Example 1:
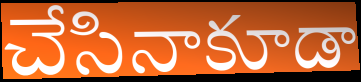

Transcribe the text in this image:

చేసినాకూడా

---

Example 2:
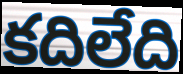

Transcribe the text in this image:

కదిలేది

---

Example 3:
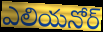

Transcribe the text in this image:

ఎలియనోర్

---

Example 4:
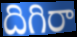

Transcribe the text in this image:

దిగిరా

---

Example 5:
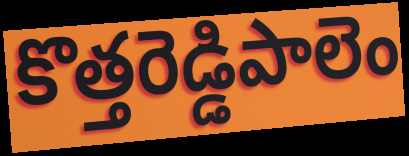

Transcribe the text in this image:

కొత్తరెడ్డిపాలెం